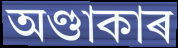
অণ্ডাকাৰ